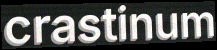
crastinum